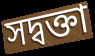
সদ্বক্তা